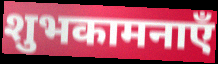
शुभकामनाएँ